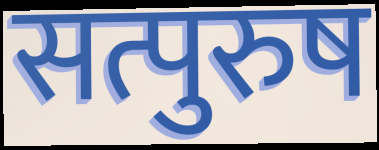
सत्पुरुष